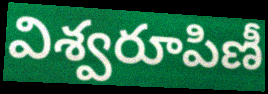
విశ్వరూపిణీ